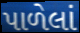
પાળેલાં